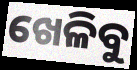
ଖେଳିବୁ